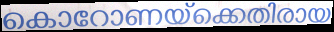
കൊറോണയ്‌ക്കെതിരായ